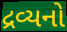
દ્રવ્યનો